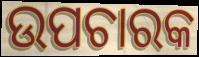
ଉପଚାରକ